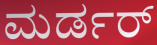
ಮರ್ಡರ್